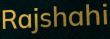
Rajshahi